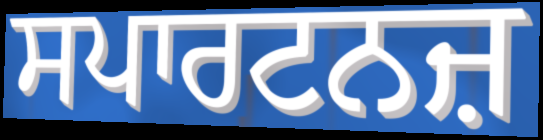
ਸਪਾਰਟਨਜ਼